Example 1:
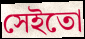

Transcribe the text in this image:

সেইতো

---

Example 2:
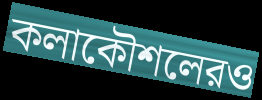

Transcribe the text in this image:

কলাকৌশলেরও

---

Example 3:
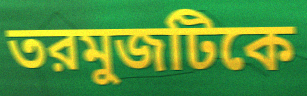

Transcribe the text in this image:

তরমুজটিকে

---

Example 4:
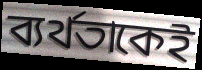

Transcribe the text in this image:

ব্যর্থতাকেই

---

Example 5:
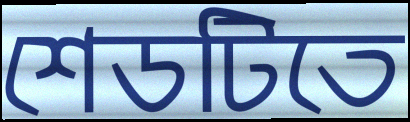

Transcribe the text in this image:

শেডটিতে